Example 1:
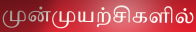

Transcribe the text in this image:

முன்முயற்சிகளில்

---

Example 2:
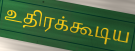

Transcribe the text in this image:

உதிரக்கூடிய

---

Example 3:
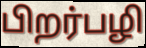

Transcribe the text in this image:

பிறர்பழி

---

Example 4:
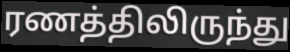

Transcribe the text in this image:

ரணத்திலிருந்து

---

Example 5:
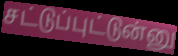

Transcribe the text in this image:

சட்டுப்புட்டுன்னு